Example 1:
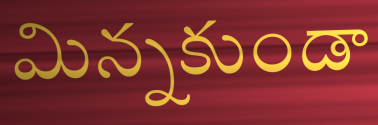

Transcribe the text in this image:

మిన్నకుండా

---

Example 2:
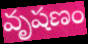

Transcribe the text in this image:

వృషణం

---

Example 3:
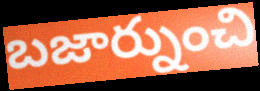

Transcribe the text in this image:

బజార్నుంచి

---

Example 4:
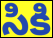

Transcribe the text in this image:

సికి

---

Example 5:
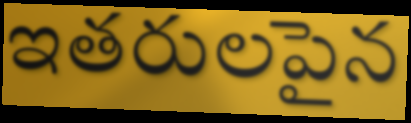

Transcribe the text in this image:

ఇతరులపైన